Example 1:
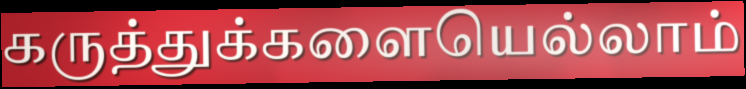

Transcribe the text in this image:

கருத்துக்களையெல்லாம்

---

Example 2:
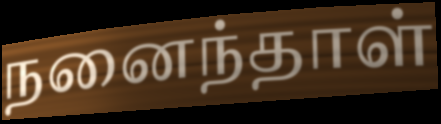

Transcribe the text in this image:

நனைந்தாள்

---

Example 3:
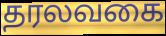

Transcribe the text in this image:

தரலவகை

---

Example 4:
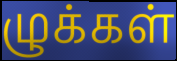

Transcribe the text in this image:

ழுக்கள்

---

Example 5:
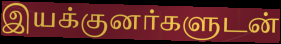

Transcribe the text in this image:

இயக்குனர்களுடன்